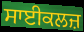
ਸਾਈਕਲਜ਼